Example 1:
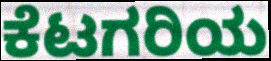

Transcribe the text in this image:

ಕೆಟಗರಿಯ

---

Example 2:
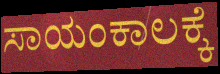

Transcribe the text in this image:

ಸಾಯಂಕಾಲಕ್ಕೆ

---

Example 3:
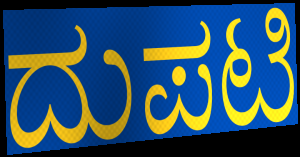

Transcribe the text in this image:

ದುಪಟಿ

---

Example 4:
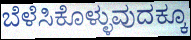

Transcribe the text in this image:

ಬೆಳೆಸಿಕೊಳ್ಳುವುದಕ್ಕೂ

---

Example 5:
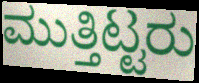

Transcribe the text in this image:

ಮುತ್ತಿಟ್ಟರು